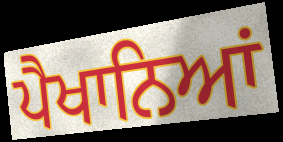
ਪੈਖਾਨਿਆਂ